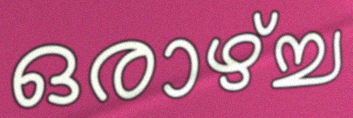
ഒരാഴ്ച്ച